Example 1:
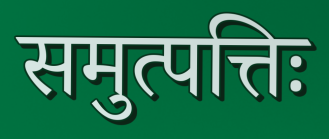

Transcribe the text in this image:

समुत्पत्तिः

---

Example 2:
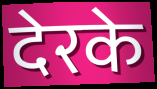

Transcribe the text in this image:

देरके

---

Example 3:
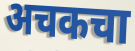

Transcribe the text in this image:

अचकचा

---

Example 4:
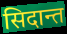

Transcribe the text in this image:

सिदान्त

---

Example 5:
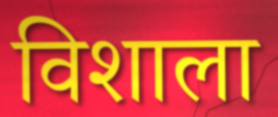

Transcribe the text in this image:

विशाला